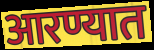
आरण्यात